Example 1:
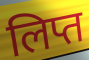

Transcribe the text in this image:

लिप्त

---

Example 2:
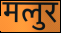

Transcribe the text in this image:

मलुर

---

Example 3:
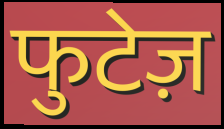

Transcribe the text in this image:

फुटेज़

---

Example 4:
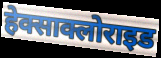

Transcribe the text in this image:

हेक्साक्लोराइड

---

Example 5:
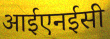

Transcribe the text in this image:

आईएनईसी